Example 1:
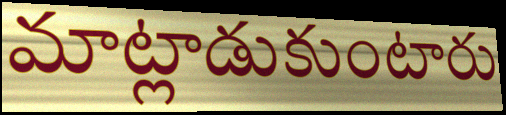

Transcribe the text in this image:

మాట్లాడుకుంటారు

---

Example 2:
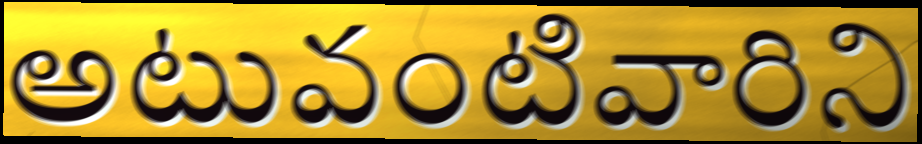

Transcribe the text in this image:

అటువంటివారిని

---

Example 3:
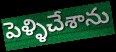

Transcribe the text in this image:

పెళ్ళిచేశాను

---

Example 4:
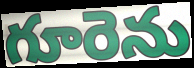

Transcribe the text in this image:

గూరెను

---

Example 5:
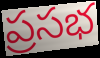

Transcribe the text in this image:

ప్రసభ